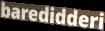
baredidderi